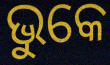
ଭୁକେ